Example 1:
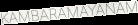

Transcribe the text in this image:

KAMBARAMAYANAM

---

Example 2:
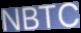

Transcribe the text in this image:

NBTC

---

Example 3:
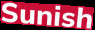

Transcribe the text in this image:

Sunish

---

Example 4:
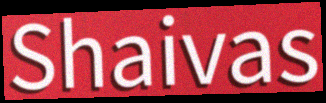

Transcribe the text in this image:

Shaivas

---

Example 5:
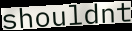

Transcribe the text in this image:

shouldnt